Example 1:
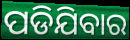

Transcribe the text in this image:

ପଡିଯିବାର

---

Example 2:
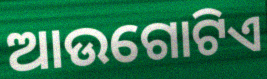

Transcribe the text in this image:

ଆଉଗୋଟିଏ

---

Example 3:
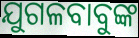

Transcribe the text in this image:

ଯୁଗଳବାବୁଙ୍କ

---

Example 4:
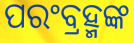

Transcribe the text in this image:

ପରଂବ୍ରହ୍ମଙ୍କ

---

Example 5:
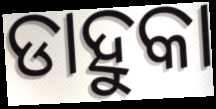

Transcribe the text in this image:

ଡାହୁକା